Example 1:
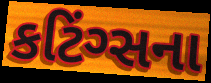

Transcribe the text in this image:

કટિંગ્સના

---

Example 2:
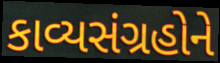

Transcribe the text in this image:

કાવ્યસંગ્રહોને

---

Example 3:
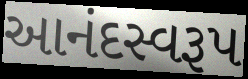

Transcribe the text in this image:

આનંદસ્વરૂપ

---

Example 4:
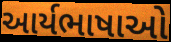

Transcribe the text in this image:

આર્યભાષાઓ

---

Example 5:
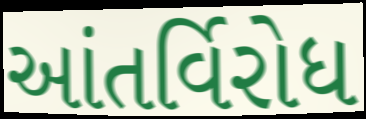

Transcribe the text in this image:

આંતર્વિરોધ